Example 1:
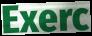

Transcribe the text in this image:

Exerc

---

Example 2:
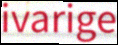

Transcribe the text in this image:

ivarige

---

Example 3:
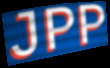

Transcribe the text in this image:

JPP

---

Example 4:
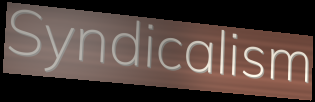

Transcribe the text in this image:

Syndicalism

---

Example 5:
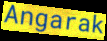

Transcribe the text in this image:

Angarak